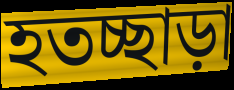
হতচ্ছাড়া